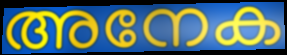
അനേക